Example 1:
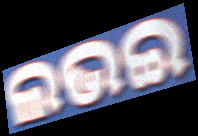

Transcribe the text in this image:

ଲଭଇ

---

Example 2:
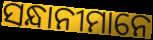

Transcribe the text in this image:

ସନ୍ଧାନୀମାନେ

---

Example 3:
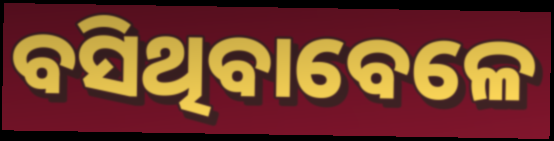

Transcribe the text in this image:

ବସିଥିବାବେଳେ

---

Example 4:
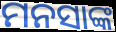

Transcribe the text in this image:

ମନସାଙ୍କ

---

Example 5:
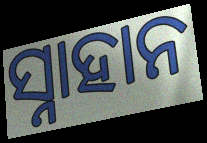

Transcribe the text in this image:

ସ୍ନାହାନ